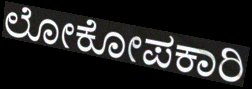
ಲೋಕೋಪಕಾರಿ